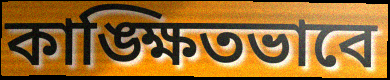
কাঙ্ক্ষিতভাবে